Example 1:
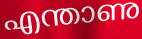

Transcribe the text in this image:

എന്താണു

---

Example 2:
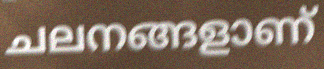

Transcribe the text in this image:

ചലനങ്ങളാണ്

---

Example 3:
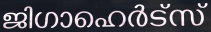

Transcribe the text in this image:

ജിഗാഹെർട്സ്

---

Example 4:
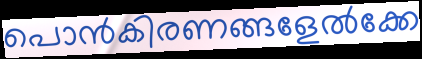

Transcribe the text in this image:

പൊൻകിരണങ്ങളേൽക്കേ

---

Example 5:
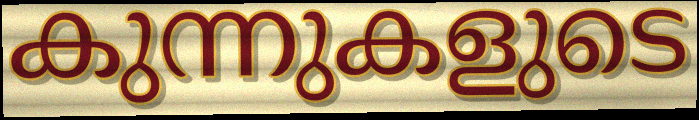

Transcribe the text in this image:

കുന്നുകളുടെ